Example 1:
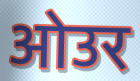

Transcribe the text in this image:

ओउर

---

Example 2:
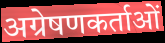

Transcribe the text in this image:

अग्रेषणकर्ताओं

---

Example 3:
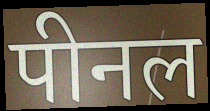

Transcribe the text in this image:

पीनल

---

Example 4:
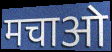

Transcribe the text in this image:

मचाओ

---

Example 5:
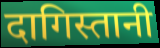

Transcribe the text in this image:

दागिस्तानी